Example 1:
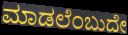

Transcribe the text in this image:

ಮಾಡಲೆಂಬುದೇ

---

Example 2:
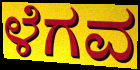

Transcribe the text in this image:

ಳೆಗವ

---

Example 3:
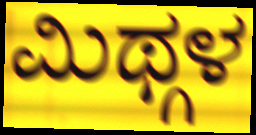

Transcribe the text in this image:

ಮಿಥ್ಗಳ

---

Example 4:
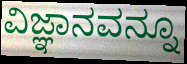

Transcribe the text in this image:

ವಿಜ್ಞಾನವನ್ನೂ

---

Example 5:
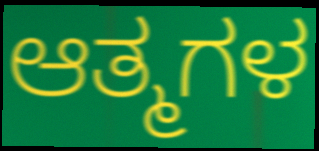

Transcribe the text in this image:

ಆತ್ಮಗಳ